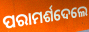
ପରାମର୍ଶଦେଲେ